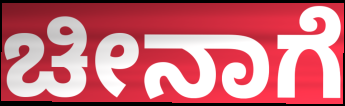
ಚೀನಾಗೆ